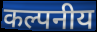
कल्पनीय